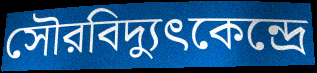
সৌরবিদ্যুৎকেন্দ্রে